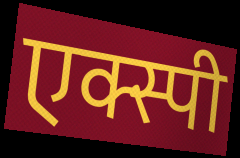
एक्स्पी